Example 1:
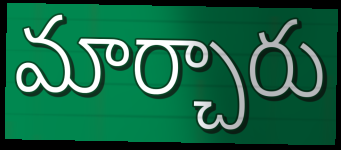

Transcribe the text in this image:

మార్చారు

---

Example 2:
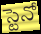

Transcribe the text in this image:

స్టెనో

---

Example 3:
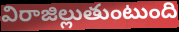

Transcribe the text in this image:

విరాజిల్లుతుంటుంది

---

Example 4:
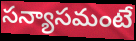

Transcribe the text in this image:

సన్యాసమంటే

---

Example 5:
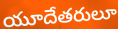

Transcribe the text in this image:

యూదేతరులూ